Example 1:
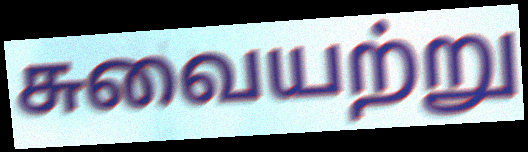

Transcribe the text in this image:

சுவையற்று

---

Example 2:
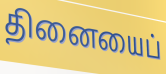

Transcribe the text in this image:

தினையைப்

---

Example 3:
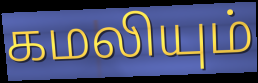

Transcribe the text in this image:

கமலியும்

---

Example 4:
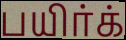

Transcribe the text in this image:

பயிர்க்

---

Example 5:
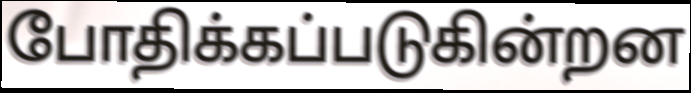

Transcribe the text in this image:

போதிக்கப்படுகின்றன